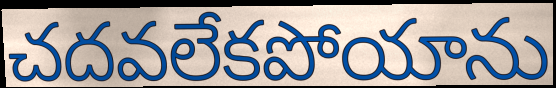
చదవలేకపోయాను